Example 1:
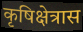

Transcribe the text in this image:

कृषिक्षेत्रास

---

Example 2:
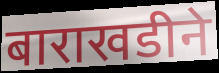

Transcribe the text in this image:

बाराखडीने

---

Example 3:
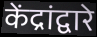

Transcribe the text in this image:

केंद्रांद्वारे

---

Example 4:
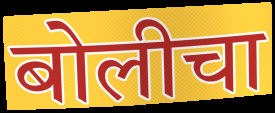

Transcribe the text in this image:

बोलीचा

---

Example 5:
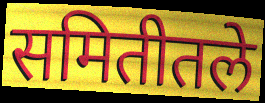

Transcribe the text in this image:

समितीतले